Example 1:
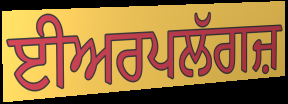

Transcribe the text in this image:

ਈਅਰਪਲੱਗਜ਼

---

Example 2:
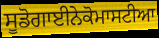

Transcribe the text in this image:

ਸੂਡੋਗਾਈਨੇਕੋਮਾਸਟੀਆ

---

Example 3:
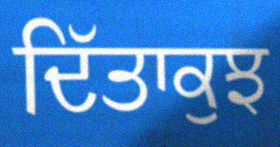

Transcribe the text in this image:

ਦਿੱਤਾਕੁਝ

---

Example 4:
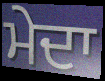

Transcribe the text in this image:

ਮੇਦਾ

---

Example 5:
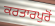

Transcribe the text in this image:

ਕਰਤਾਰਪੁਰੋਂ